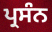
ਪ੍ਰਸੰਨ